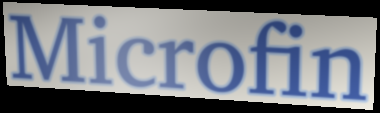
Microfin